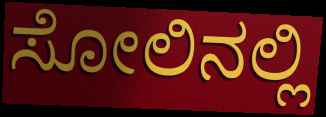
ಸೋಲಿನಲ್ಲಿ